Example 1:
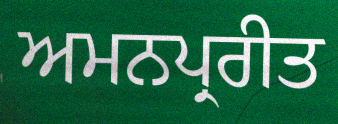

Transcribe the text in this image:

ਅਮਨਪ੍ਰਰੀਤ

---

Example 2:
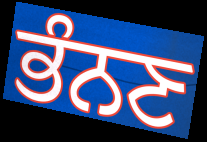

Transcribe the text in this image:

ਭੰਨਣ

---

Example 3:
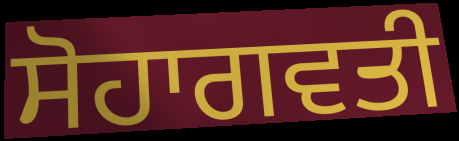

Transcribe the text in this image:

ਸੋਹਾਗਵਤੀ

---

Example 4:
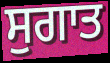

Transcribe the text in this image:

ਸੁਗਾਤ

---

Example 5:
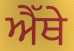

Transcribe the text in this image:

ਐੱਥੇ